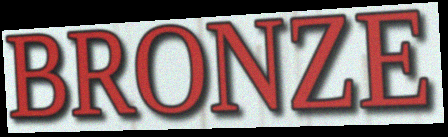
BRONZE